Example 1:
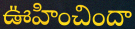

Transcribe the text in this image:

ఊహించిందా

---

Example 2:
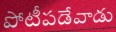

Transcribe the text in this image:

పోటీపడేవాడు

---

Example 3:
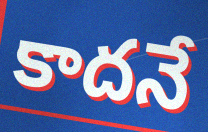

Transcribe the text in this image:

కాదనే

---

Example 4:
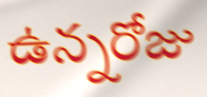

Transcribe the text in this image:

ఉన్నరోజు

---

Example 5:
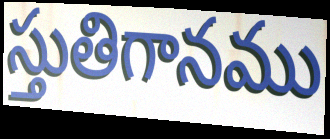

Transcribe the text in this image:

స్తుతిగానము